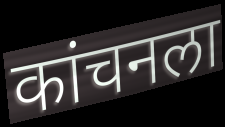
कांचनला